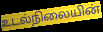
உடல்நிலையின்